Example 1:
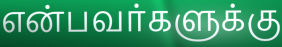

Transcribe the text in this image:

என்பவர்களுக்கு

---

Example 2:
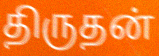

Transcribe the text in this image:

திருதன்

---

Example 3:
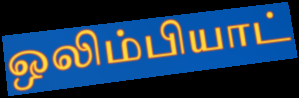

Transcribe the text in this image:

ஒலிம்பியாட்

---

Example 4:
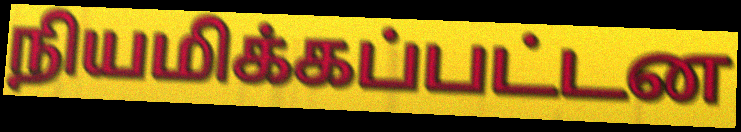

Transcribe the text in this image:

நியமிக்கப்பட்டன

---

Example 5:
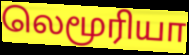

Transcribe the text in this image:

லெமூரியா